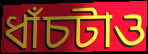
ধাঁচটাও